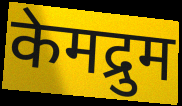
केमद्रुम